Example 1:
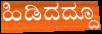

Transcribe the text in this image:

ಹಿಡಿದದ್ದೂ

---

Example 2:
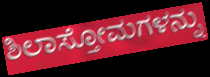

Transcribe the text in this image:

ಶಿಲಾಸ್ತೋಮಗಳನ್ನು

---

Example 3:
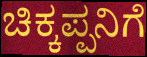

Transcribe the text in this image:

ಚಿಕ್ಕಪ್ಪನಿಗೆ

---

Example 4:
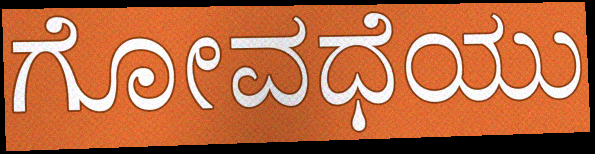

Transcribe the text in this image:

ಗೋವಧೆಯು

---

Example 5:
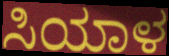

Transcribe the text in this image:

ಸಿಯಾಳ